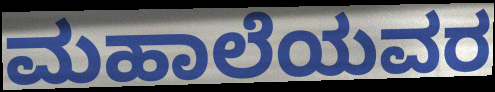
ಮಹಾಲೆಯವರ